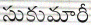
సుకుమారీ